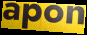
apon